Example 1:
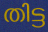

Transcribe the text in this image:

തിട്ട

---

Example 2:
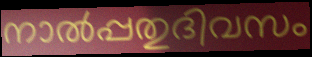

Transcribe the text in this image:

നാൽപ്പതുദിവസം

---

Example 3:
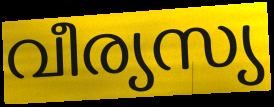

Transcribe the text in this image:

വീര്യസ്യ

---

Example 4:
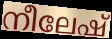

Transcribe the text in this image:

നീലേഷ്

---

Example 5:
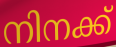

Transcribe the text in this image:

നിനക്ക്